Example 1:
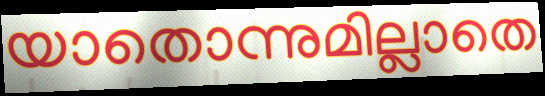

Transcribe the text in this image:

യാതൊന്നുമില്ലാതെ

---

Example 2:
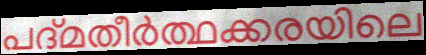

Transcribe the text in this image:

പദ്മതീർത്ഥക്കരയിലെ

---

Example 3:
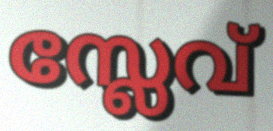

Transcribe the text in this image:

സ്ലേവ്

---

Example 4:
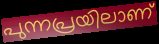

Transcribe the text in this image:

പുന്നപ്രയിലാണ്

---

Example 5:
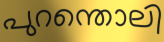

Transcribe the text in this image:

പുറന്തൊലി